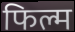
फिल्म